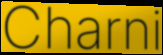
Charni